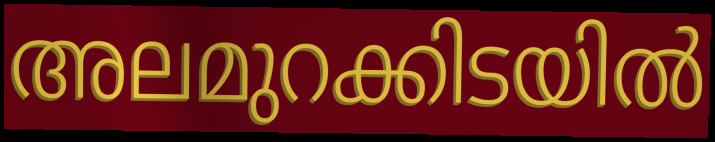
അലമുറക്കിടയിൽ